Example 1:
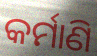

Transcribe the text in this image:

କର୍ମାଣି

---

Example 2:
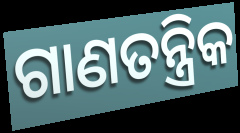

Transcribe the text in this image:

ଗାଣତନ୍ତ୍ରିକ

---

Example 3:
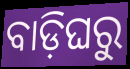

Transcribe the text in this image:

ବାଡ଼ିଘରୁ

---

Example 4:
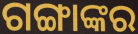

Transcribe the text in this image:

ଗଙ୍ଗାଙ୍କର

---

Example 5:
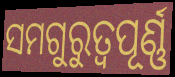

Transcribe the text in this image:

ସମଗୁରୁତ୍ଵପୂର୍ଣ୍ଣ